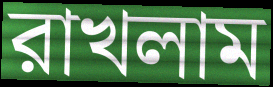
রাখলাম